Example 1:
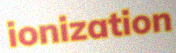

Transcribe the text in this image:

ionization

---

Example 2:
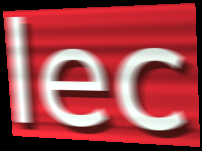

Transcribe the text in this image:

lec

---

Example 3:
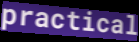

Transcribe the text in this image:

practical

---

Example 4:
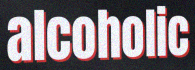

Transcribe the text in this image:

alcoholic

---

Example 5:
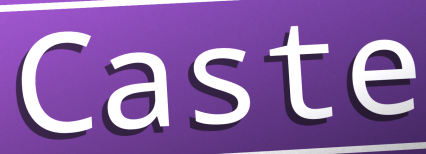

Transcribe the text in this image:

Caste